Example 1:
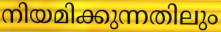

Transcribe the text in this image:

നിയമിക്കുന്നതിലും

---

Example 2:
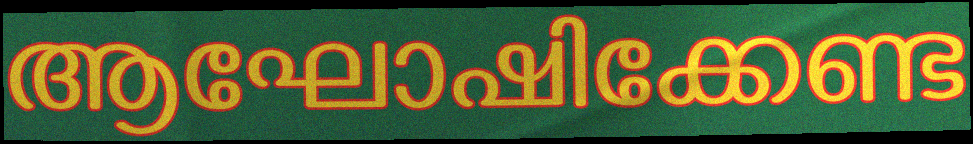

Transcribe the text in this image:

ആഘോഷിക്കേണ്ട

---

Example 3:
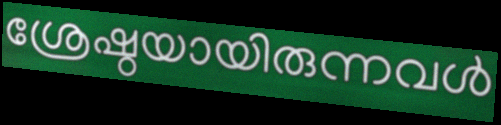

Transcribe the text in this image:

ശ്രേഷ്ഠയായിരുന്നവൾ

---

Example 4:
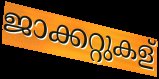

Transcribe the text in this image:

ജാക്കറ്റുകള്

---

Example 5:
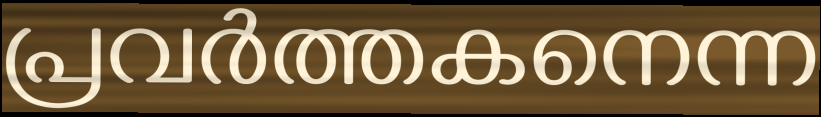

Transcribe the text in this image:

പ്രവർത്തകനെന്ന